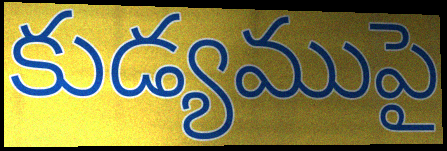
కుడ్యముపై